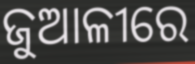
ଜୁଆଳୀରେ